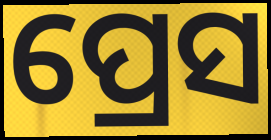
ପ୍ରେସ